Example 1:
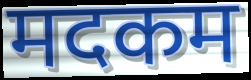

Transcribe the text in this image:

मदकम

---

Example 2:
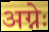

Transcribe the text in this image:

अग्नेः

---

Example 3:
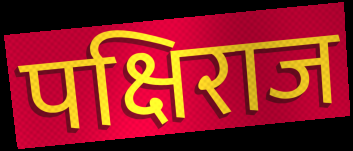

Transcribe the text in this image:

पक्षिराज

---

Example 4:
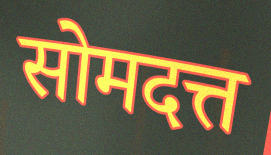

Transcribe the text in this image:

सोमदत्त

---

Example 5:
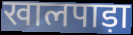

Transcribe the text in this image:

खालपाड़ा